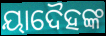
ୟାଦୈହଙ୍କ